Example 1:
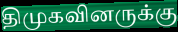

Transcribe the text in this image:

திமுகவினருக்கு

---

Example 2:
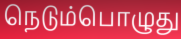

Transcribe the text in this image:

நெடும்பொழுது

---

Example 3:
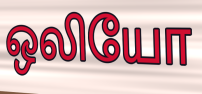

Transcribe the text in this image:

ஒலியோ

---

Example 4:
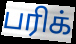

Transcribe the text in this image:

பரிக்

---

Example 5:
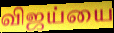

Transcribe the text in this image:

விஜய்யை